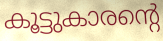
കൂട്ടുകാരന്റെ